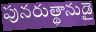
పునరుత్థానుడై